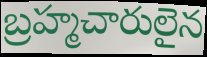
బ్రహ్మచారులైన